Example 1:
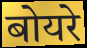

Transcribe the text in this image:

बोयरे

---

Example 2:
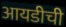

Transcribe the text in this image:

आयडीची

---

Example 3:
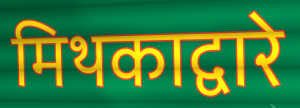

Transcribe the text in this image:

मिथकाद्वारे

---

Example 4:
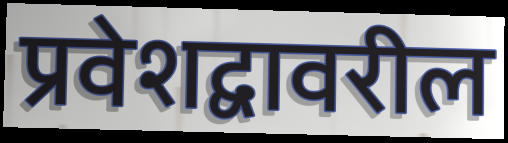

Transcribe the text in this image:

प्रवेशद्वावरील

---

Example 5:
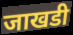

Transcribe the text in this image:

जाखडी